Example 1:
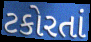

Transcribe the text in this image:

ટકોરતાં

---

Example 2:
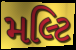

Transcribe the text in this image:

મલ્ટિ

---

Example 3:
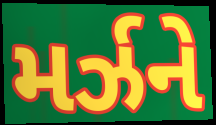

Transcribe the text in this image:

મર્ઝને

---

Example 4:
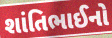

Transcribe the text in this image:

શાંતિભાઈનો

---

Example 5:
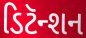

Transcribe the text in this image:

ડિટૅન્શન